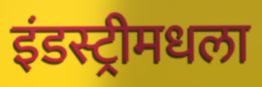
इंडस्ट्रीमधला